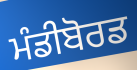
ਮੰਡੀਬੋਰਡ